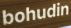
bohudin